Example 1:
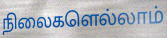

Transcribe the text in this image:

நிலைகளெல்லாம்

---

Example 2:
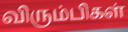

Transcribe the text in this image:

விரும்பிகள்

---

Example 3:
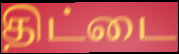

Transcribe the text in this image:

திட்டை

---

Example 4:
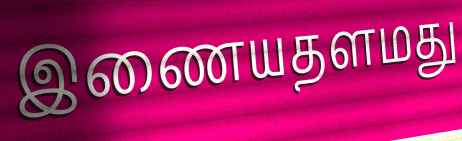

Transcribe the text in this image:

இணையதளமது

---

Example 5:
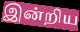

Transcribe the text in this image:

இன்றிய